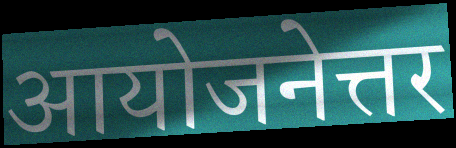
आयोजनेत्तर